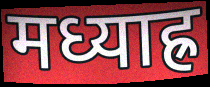
मध्याह्र